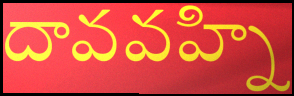
దావవహ్ని